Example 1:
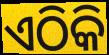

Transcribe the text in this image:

ଏଠିକି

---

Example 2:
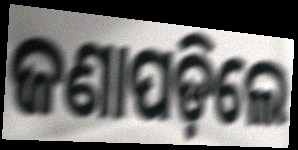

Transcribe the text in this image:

ଜଣାପଡ଼ିଲେ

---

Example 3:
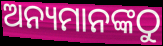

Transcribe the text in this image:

ଅନ୍ୟମାନଙ୍କଠୁ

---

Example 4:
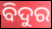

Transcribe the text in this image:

ବିଦୁର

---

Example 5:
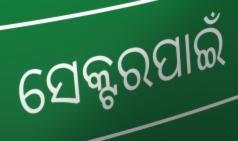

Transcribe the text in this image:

ସେକ୍ଟରପାଇଁ